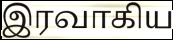
இரவாகிய